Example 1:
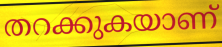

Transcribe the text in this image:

തറക്കുകയാണ്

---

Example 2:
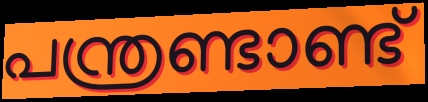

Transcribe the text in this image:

പന്ത്രണ്ടാണ്ട്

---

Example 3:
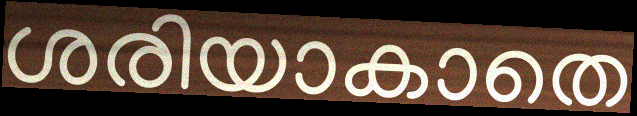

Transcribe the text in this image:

ശരിയാകാതെ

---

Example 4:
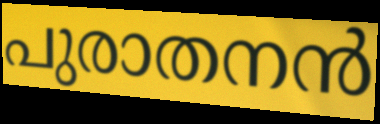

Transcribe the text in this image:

പുരാതനൻ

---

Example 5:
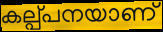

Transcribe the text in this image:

കല്പ്പനയാണ്